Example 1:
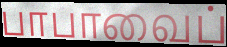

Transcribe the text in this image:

பாபாவைப்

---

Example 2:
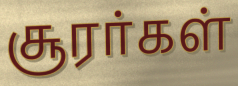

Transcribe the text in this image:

சூரர்கள்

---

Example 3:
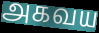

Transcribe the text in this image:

அகவய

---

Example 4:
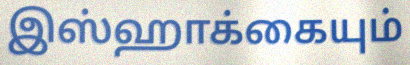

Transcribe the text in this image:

இஸ்ஹாக்கையும்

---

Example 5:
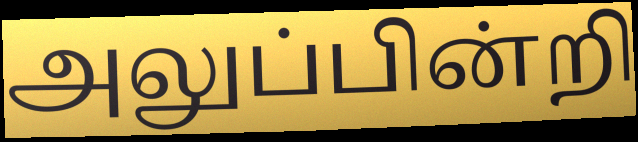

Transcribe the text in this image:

அலுப்பின்றி